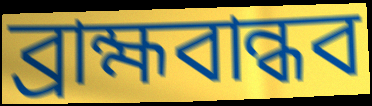
ব্রাহ্মবান্ধব